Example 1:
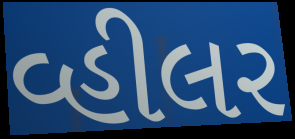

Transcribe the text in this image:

વ્હીલર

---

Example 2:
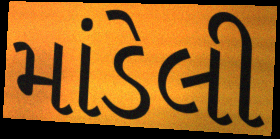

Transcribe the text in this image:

માંડેલી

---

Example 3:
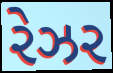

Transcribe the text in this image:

રેઝર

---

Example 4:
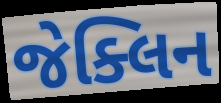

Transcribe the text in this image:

જેક્લિન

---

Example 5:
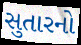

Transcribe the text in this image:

સુતારનો